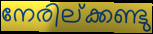
നേരില്ക്കണ്ടു